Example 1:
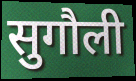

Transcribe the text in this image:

सुगौली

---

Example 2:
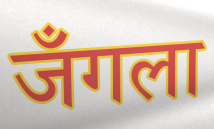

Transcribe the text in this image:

जँगला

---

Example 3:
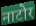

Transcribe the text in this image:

नाटोर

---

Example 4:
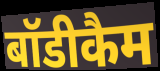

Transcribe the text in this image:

बॉडीकैम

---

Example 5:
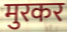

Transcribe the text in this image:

मुरकर